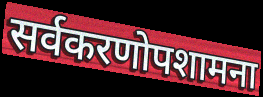
सर्वकरणोपशामना